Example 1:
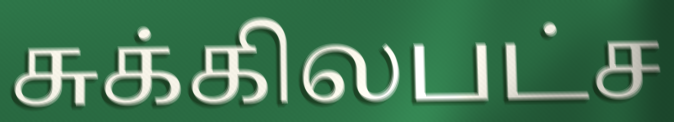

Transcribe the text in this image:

சுக்கிலபட்ச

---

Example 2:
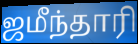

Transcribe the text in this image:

ஜமீந்தாரி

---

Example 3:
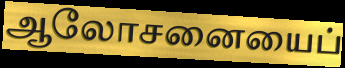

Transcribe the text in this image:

ஆலோசனையைப்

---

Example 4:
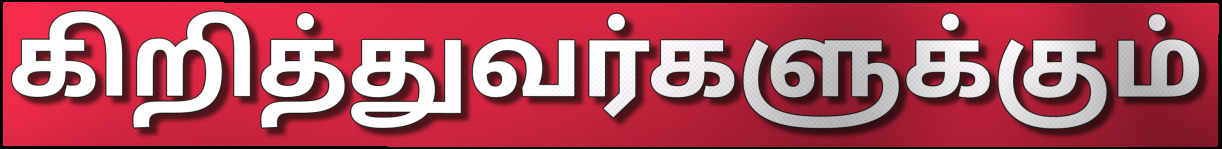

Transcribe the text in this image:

கிறித்துவர்களுக்கும்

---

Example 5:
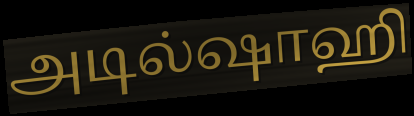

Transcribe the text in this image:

அடில்ஷாஹி